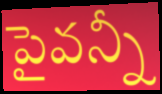
పైవన్నీ